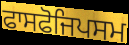
ਫਾਸਫੋਜਿਪਸਮ